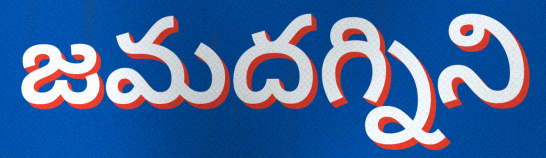
జమదగ్నిని